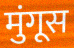
मुंगूस